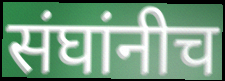
संघांनीच